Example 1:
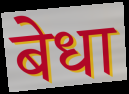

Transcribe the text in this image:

बेधा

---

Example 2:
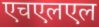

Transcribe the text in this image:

एचएलएल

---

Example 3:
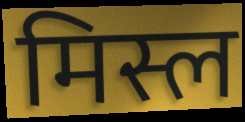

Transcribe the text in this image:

मिस्ल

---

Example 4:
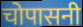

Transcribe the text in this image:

चोपासनी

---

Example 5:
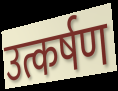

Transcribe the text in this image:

उत्कर्षण